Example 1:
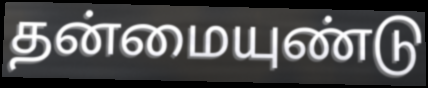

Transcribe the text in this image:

தன்மையுண்டு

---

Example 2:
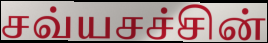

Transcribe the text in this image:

சவ்யசச்சின்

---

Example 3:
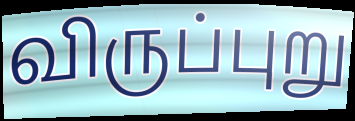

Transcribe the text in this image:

விருப்புறு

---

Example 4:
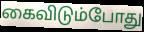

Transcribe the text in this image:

கைவிடும்போது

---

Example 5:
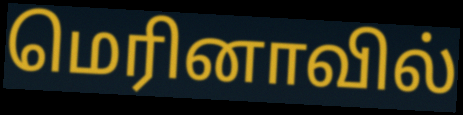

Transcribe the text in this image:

மெரினாவில்